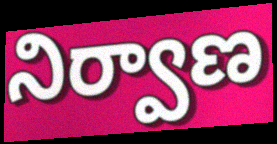
నిర్వాణ